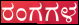
ರಂಗಗಳ